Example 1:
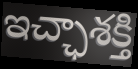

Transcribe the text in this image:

ఇచ్ఛాశక్తి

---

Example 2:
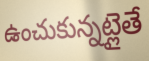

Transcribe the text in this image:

ఉంచుకున్నట్లైతే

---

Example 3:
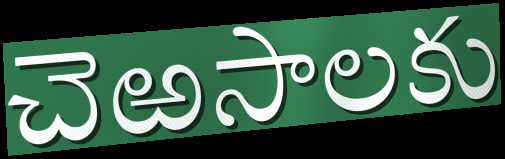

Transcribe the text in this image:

చెఱసాలకు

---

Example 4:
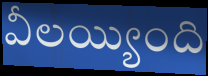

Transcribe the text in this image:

వీలయ్యింది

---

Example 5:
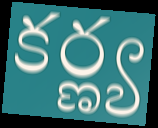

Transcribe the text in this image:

కర్ణ్య